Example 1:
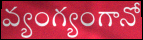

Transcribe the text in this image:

వ్యంగ్యంగానో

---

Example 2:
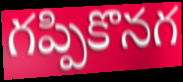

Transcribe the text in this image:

గప్పికొనగ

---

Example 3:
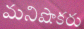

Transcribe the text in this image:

మనిషొకరు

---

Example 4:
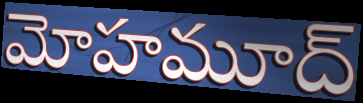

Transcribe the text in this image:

మోహమూద్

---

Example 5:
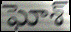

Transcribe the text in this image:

ఘోశ్